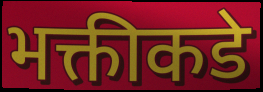
भक्तीकडे